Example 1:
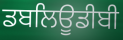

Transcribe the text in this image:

ਡਬਲਿਊਡੀਬੀ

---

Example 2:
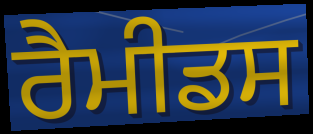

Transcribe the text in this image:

ਰੈਮੀਡਸ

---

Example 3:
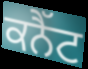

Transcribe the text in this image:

ਕਨੈੱਟ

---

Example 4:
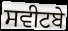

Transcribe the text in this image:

ਸਵੀਟਬੇ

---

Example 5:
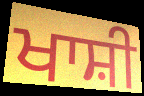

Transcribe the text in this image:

ਖਾਸ਼ੀ